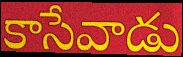
కాసేవాడు